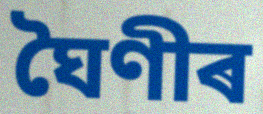
ঘৈণীৰ